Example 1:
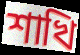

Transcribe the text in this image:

শাখি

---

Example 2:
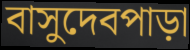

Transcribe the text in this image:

বাসুদেবপাড়া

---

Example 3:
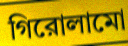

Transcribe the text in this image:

গিরোলামো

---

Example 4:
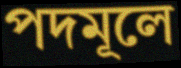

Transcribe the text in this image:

পদমূলে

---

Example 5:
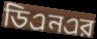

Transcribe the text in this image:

ডিএনএর